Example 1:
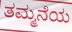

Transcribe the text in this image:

ತಮ್ಮನೆಯ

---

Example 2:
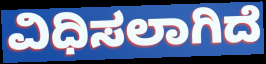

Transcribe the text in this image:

ವಿಧಿಸಲಾಗಿದೆ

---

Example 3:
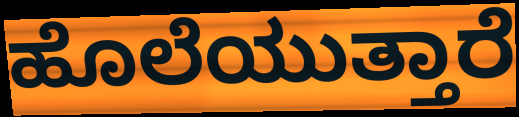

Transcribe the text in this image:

ಹೊಲೆಯುತ್ತಾರೆ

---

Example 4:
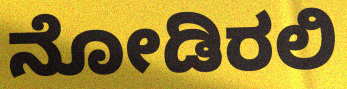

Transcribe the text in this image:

ನೋಡಿರಲಿ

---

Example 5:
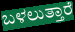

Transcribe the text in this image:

ಬಳಲುತ್ತಾರೆ